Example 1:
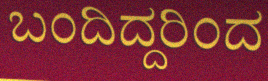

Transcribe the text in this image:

ಬಂದಿದ್ದರಿಂದ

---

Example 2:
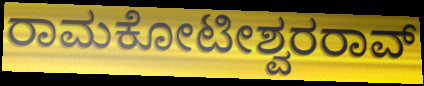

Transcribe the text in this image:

ರಾಮಕೋಟೀಶ್ವರರಾವ್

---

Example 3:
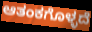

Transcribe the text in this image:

ಆತಂಕಗೊಳ್ಳದೆ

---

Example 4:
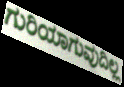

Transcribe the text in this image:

ಗುರಿಯಾಗುವುದಿಲ್ಲ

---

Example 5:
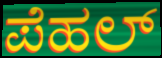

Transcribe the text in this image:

ಪೆಹಲ್